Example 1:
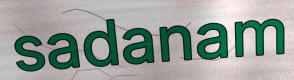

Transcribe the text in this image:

sadanam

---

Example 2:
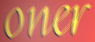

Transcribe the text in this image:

oner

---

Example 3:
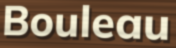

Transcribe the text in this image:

Bouleau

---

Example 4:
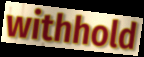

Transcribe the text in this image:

withhold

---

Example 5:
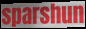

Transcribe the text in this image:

sparshun